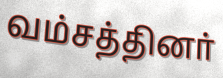
வம்சத்தினர்